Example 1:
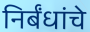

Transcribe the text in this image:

निर्बंधांचे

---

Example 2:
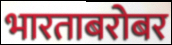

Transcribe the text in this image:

भारताबरोबर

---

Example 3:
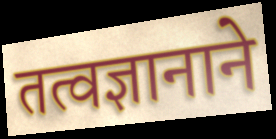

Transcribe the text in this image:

तत्वज्ञानाने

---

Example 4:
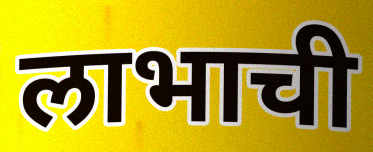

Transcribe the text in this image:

लाभाची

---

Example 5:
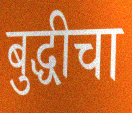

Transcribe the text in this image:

बुद्धीचा